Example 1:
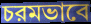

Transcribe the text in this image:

চরমভাবে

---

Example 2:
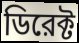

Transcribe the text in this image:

ডিরেক্ট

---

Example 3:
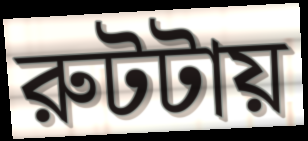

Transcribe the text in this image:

রুটটায়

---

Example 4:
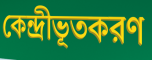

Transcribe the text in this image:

কেন্দ্রীভূতকরণ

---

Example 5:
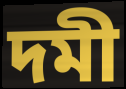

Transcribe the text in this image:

দমী